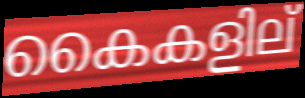
കൈകളില്